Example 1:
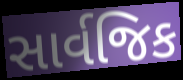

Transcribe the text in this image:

સાર્વજિક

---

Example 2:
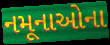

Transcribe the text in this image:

નમૂનાઓના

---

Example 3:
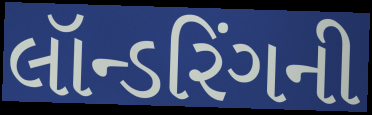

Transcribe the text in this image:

લૉન્ડરિંગની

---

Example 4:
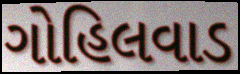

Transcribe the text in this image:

ગોહિલવાડ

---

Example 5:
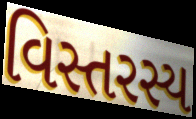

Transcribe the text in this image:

વિસ્તરસ્ય